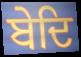
ਬੇਦਿ